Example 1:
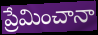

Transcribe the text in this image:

ప్రేమించానా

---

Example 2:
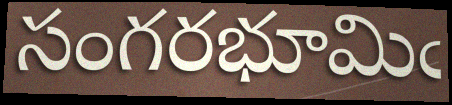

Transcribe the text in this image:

సంగరభూమిఁ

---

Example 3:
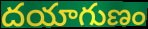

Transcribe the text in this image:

దయాగుణం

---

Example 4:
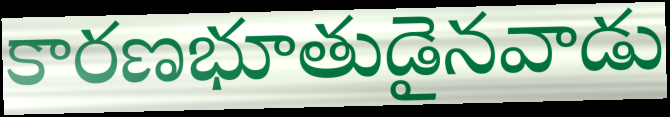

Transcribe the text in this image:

కారణభూతుడైనవాడు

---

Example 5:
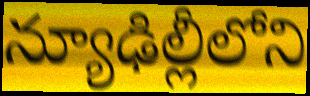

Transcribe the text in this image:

న్యూఢిల్లీలోని